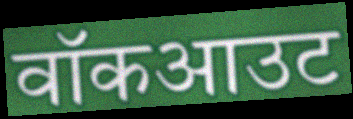
वॉकआउट